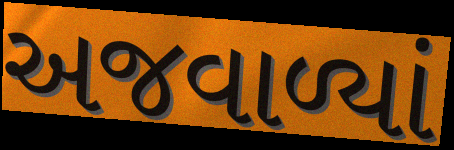
અજવાળ્યાં